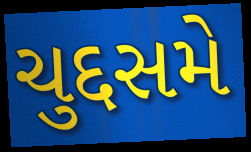
ચુદ્દસમે